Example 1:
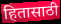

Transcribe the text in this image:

हितासाठी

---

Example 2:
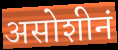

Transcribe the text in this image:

असोशीनं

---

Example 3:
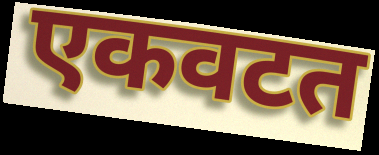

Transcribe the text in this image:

एकवटत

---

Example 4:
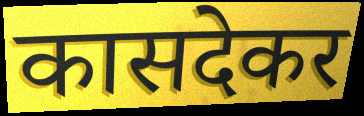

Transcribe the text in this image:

कासदेकर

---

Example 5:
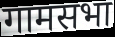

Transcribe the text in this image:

गामसभा